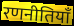
रणनीतियाँ